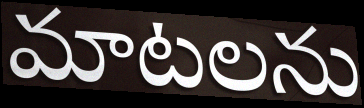
మాటలను